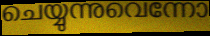
ചെയ്യുന്നുവെന്നോ